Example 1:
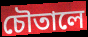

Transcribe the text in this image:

চৌতালে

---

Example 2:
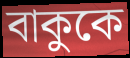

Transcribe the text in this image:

বাকুকে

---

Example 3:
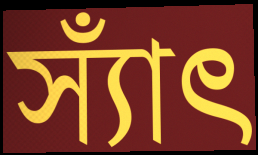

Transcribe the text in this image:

স্যাঁৎ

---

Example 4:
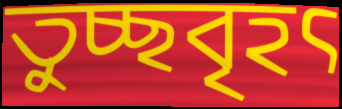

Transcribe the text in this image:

তুচ্ছবৃহৎ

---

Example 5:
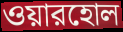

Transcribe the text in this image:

ওয়ারহোল